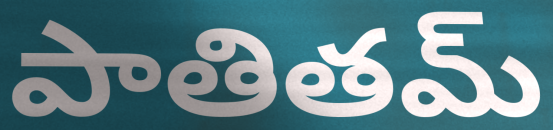
పాతితమ్